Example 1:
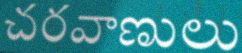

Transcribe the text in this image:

చరవాణులు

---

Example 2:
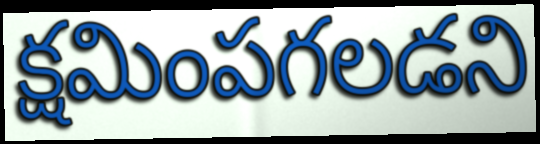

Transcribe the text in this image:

క్షమింపగలడని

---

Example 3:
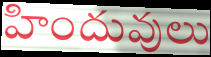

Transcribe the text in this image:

హిందువులు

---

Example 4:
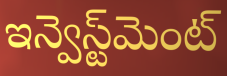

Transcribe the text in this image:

ఇన్వెస్ట్‌మెంట్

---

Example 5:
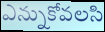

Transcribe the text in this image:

ఎన్నుకోవలసి